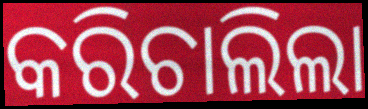
କରିଚାଲିଲା